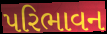
પરિભાવન